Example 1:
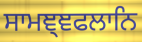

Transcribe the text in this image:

ਸਾਮਞ੍ਞਫਲਾਨਿ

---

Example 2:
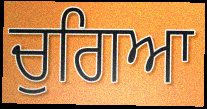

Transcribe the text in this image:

ਚੁਗਿਆ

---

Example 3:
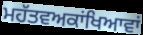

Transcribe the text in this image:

ਮਹੱਤਵਅਕਾਂਖਿਆਵਾਂ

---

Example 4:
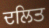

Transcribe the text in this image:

ਦਲਿਤ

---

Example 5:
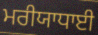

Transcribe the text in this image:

ਮਰੀਯਾਧਾਈ